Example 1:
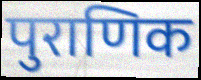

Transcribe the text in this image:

पुराणिक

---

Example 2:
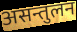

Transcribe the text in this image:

असन्तुलन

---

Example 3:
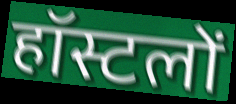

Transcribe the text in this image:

हॉस्टलों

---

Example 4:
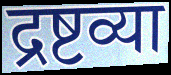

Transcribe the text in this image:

द्रष्टव्या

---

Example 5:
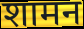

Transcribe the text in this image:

शामन